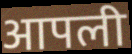
आपली